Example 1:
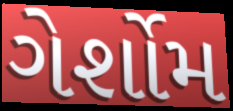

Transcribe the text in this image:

ગેર્શોમ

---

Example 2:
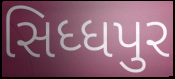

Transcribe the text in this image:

સિધ્ધપુર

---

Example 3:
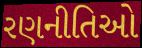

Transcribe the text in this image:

રણનીતિઓ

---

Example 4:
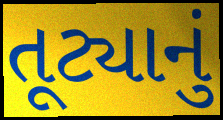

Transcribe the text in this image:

તૂટ્યાનું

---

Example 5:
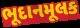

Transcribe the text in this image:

ભૂદાનમૂલક